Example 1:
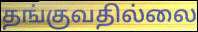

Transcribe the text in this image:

தங்குவதில்லை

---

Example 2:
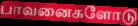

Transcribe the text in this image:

பாவனைகளோடு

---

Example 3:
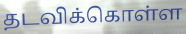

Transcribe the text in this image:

தடவிக்கொள்ள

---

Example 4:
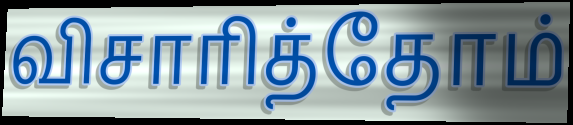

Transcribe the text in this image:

விசாரித்தோம்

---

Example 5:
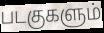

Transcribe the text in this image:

படகுகளும்